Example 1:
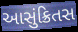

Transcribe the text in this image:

આસુંક્રિતસ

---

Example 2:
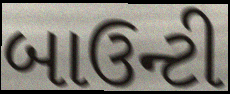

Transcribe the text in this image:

બાઉન્ટી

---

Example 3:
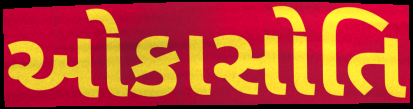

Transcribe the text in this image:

ઓકાસોતિ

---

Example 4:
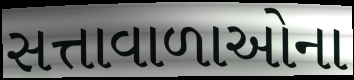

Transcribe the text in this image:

સત્તાવાળાઓના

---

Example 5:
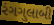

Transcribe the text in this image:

રંગગુલાબી